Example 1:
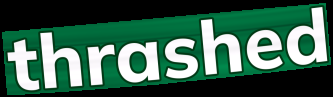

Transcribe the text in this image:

thrashed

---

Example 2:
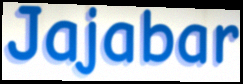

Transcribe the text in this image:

Jajabar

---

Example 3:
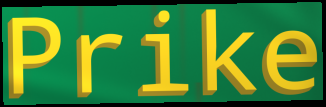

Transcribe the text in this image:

Prike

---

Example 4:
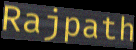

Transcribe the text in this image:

Rajpath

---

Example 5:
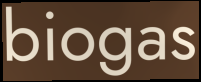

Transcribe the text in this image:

biogas